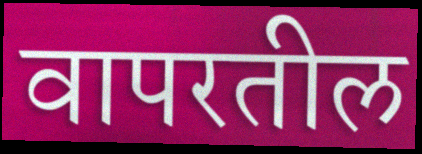
वापरतील